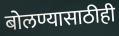
बोलण्यासाठीही